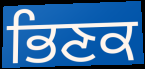
ਭਿਣਕ